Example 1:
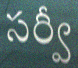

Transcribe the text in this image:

సర్వీ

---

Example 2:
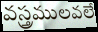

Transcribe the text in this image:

వస్త్రములవలే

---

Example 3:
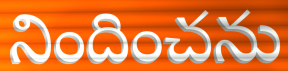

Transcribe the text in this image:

నిందించను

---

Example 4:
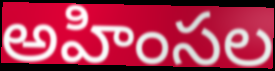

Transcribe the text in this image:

అహింసల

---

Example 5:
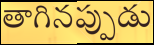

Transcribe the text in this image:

తాగినప్పుడు